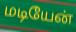
மடியேன்